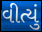
વીત્યું